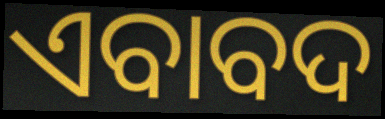
ଏବାବଦ